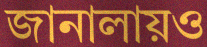
জানালায়ও